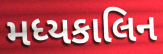
મધ્યકાલિન